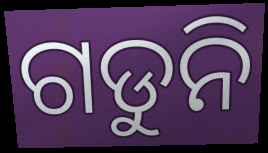
ଗଡୁନି